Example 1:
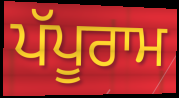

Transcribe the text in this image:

ਪੱਪੂਰਾਮ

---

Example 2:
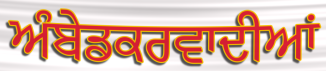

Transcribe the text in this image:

ਅੰਬੇਡਕਰਵਾਦੀਆਂ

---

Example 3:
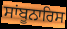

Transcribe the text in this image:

ਸਾਂਬੂਨਾਰਿਸ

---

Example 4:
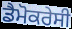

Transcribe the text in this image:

ਡੈਮੋਕਰੇਸੀ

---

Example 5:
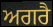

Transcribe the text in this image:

ਅਗਰੈ